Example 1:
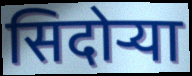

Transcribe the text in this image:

सिदोर्‍या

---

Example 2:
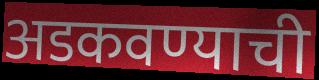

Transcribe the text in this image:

अडकवण्याची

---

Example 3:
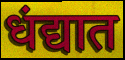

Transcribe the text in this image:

धंद्यात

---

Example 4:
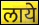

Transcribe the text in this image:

लाये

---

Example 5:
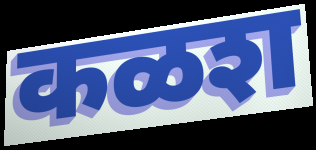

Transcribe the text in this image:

कळश